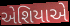
એશિયાએ